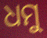
ଧମୁ